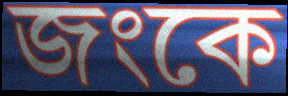
জংকে